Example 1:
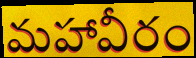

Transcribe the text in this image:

మహావీరం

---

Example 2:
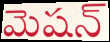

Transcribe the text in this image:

మెషన్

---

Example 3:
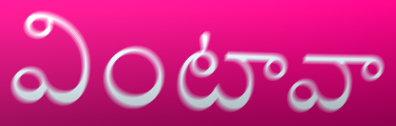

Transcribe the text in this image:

వింటావా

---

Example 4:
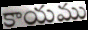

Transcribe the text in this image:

కాయము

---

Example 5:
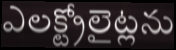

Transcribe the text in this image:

ఎలక్ట్రోలైట్లను